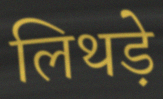
लिथड़े